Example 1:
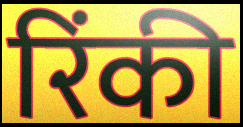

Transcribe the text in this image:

रिंकी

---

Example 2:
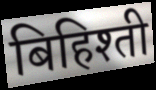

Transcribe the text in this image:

बिहिश्ती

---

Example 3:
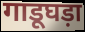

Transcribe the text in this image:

गाडूघड़ा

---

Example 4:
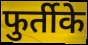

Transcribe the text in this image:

फुर्तीके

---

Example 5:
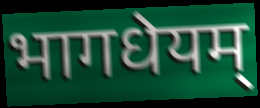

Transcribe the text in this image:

भागधेयम्